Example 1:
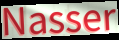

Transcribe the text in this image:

Nasser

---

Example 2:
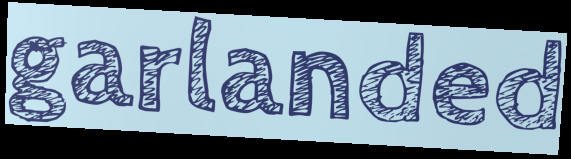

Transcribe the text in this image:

garlanded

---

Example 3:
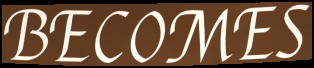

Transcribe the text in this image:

BECOMES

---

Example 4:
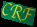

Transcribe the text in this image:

CRF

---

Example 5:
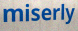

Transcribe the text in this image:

miserly